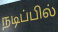
நடிப்பில்